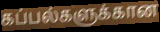
கப்பல்களுக்கான